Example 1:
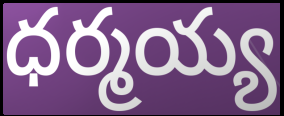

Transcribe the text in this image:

ధర్మయ్య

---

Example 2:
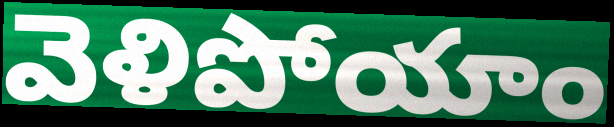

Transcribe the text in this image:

వెళిపోయాం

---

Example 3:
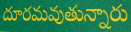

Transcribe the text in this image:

దూరమవుతున్నారు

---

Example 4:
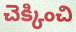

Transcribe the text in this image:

చెక్కించి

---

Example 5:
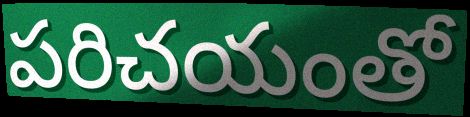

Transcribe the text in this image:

పరిచయంతో